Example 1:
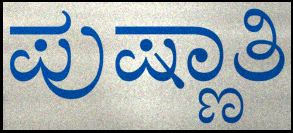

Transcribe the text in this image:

ಪುಷ್ಣಾತಿ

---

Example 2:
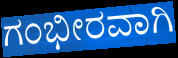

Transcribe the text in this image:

ಗಂಭೀರವಾಗಿ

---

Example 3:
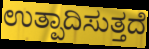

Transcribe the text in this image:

ಉತ್ಪಾದಿಸುತ್ತದೆ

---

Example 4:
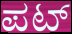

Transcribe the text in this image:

ಪಟ್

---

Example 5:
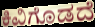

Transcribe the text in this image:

ಕಿವಿಗೊಡದೆ